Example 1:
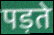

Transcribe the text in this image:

पड़ते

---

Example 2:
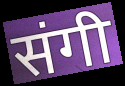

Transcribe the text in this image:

संगी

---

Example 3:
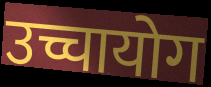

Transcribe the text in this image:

उच्चायोग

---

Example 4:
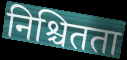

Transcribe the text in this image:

निश्चितता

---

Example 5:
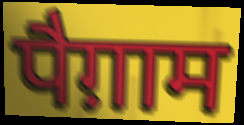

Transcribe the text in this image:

पैग़ाम